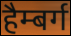
हैम्बर्ग